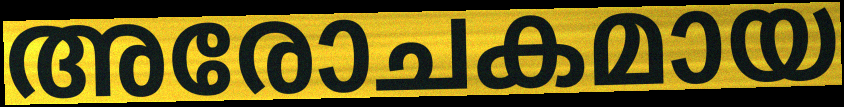
അരോചകമായ